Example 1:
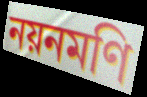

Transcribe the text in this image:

নয়নমণি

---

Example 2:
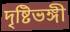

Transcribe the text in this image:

দৃষ্টিভঙ্গী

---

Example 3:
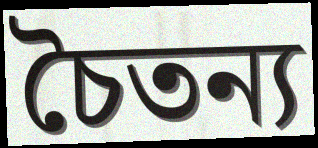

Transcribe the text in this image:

চৈতন্য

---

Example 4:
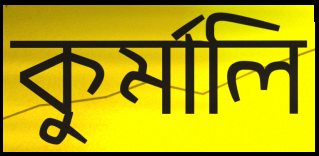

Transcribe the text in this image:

কুৰ্মালি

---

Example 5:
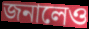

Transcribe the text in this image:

জনালেও